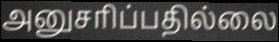
அனுசரிப்பதில்லை